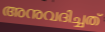
അനുവദിച്ചത്